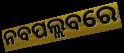
ନବପଲ୍ଲବରେ